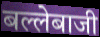
बल्लेबाजी